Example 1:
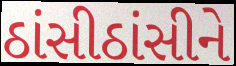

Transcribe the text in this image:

ઠાંસીઠાંસીને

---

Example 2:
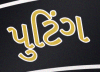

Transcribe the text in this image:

પુટિંગ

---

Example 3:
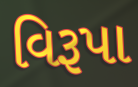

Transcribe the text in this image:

વિરૂપા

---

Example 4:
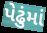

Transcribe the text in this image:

પેઢુંમાં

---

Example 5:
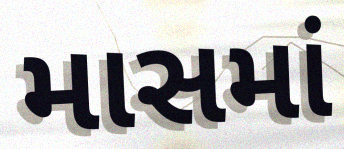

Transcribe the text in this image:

માસમાં